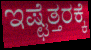
ಇಷ್ಟೆತ್ತರಕ್ಕೆ